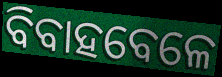
ବିବାହବେଳେ